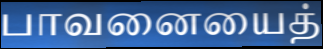
பாவனையைத்